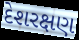
દેશરક્ષણ